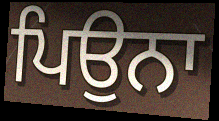
ਪਿਉਨਾ